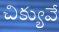
చిక్యువే